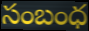
సంబంధ